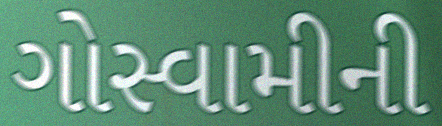
ગોસ્વામીની